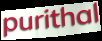
purithal